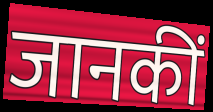
जानकीं